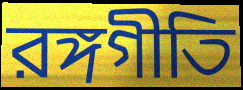
রঙ্গগীতি